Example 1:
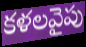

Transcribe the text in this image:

కళలవైపు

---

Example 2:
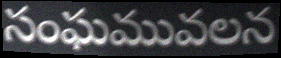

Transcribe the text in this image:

సంఘమువలన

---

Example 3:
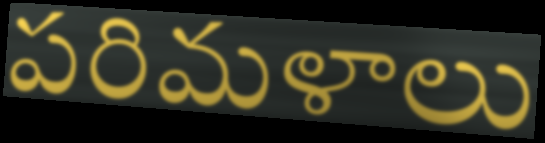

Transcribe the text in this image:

పరిమళాలు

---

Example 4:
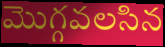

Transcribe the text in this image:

మొగ్గవలసిన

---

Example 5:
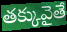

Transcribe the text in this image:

తక్కువైతే